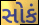
સોકં